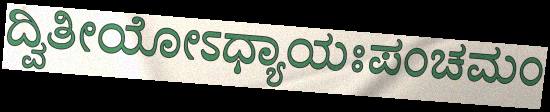
ದ್ವಿತೀಯೋಽಧ್ಯಾಯಃಪಂಚಮಂ